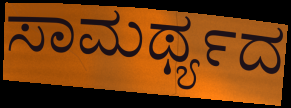
ಸಾಮರ್ಥ್ಯದ